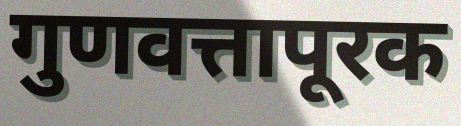
गुणवत्तापूरक